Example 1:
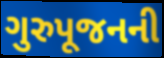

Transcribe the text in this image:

ગુરુપૂજનની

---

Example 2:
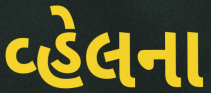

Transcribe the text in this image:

વ્હેલના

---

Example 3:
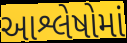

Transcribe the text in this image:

આશ્લેષોમાં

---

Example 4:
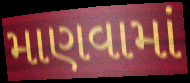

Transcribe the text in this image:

માણવામાં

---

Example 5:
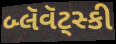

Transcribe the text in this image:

બ્લૅવૅટ્સ્કી